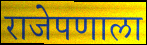
राजेपणाला